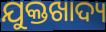
ଯୁକ୍ତଖାଦ୍ୟ